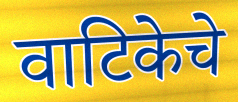
वाटिकेचे